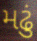
મઢું